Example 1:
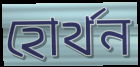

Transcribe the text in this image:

হোর্থন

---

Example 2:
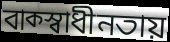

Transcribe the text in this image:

বাক্স্বাধীনতায়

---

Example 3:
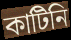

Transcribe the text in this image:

কাটিনি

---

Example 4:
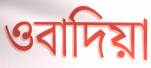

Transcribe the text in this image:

ওবাদিয়া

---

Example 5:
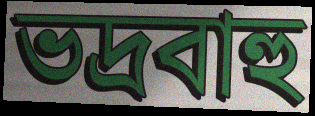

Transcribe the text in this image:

ভদ্রবাহু